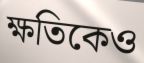
ক্ষতিকেও